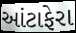
આંટાફેરા